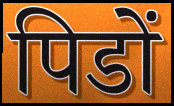
पिडों